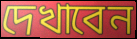
দেখাবেন